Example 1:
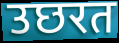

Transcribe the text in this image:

उछरत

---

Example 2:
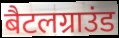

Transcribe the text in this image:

बैटलग्राउंड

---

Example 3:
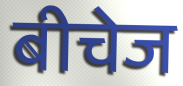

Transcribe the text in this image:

बीचेज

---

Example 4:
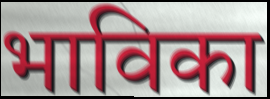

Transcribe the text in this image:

भाविका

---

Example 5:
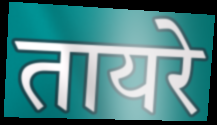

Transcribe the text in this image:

तायरे